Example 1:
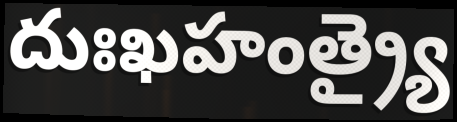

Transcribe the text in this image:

దుఃఖహంత్ర్యై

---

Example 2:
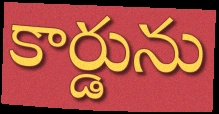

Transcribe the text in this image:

కార్డును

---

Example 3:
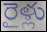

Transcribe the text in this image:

రైళ్లు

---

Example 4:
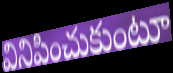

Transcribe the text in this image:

వినిపించుకుంటూ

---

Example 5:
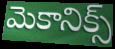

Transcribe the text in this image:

మెకానిక్స్